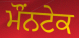
ਮੌਂਨਟੇਕ